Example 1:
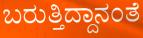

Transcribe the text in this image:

ಬರುತ್ತಿದ್ದಾನಂತೆ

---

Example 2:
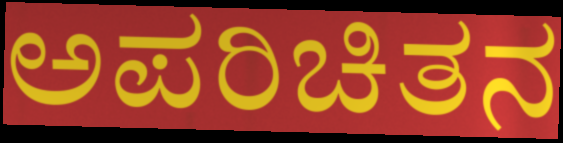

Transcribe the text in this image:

ಅಪರಿಚಿತನ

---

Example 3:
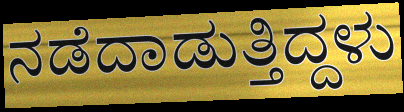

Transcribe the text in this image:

ನಡೆದಾಡುತ್ತಿದ್ದಳು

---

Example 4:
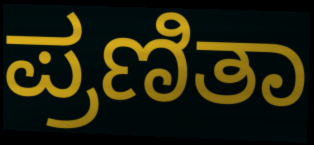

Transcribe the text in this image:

ಪ್ರಣಿತಾ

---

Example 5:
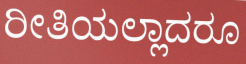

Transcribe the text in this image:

ರೀತಿಯಲ್ಲಾದರೂ